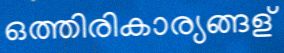
ഒത്തിരികാര്യങ്ങള്